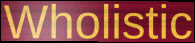
Wholistic